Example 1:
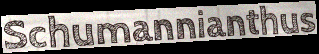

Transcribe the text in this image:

Schumannianthus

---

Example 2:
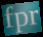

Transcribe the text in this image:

fpr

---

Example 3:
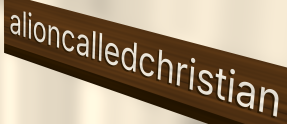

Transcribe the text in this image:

alioncalledchristian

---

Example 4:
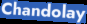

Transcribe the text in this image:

Chandolay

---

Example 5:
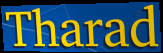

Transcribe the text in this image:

Tharad